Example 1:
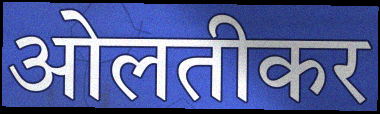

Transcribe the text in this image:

ओलतीकर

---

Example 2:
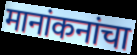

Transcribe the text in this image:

मानांकनांचा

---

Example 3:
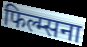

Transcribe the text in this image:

फिल्म्सना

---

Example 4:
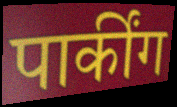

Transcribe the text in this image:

पार्कींग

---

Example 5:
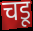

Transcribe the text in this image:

चडू